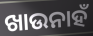
ଖାଉନାହଁ